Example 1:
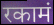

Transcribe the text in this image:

रकामं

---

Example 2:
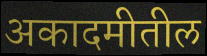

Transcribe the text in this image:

अकादमीतील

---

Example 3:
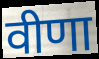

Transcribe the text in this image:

वीणा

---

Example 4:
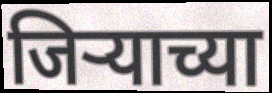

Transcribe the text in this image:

जिऱ्याच्या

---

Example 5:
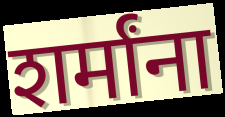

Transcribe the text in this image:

शर्मांना